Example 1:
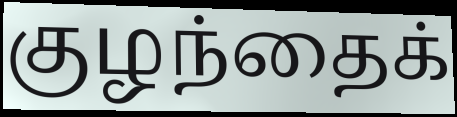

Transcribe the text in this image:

குழந்தைக்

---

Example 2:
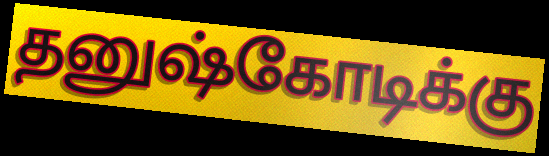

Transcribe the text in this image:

தனுஷ்கோடிக்கு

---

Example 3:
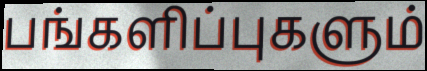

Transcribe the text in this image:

பங்களிப்புகளும்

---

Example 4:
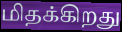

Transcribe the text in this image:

மிதக்கிறது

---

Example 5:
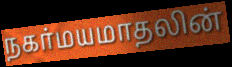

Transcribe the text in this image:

நகர்மயமாதலின்